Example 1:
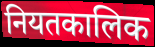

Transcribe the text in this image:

नियतकालिक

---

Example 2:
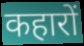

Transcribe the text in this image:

कहारों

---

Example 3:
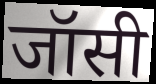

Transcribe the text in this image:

जॉसी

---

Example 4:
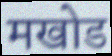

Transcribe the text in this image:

मखोड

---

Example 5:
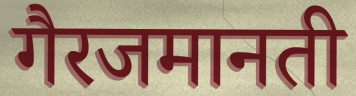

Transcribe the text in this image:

गैरजमानती